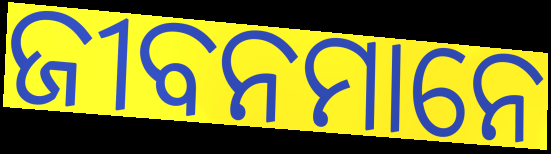
ଜୀବନମାନେ